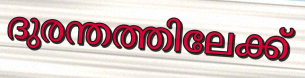
ദുരന്തത്തിലേക്ക്